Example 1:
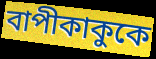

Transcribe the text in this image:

বাপীকাকুকে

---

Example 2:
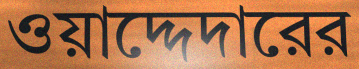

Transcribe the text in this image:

ওয়াদ্দেদারের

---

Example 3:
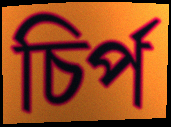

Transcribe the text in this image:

চির্প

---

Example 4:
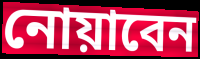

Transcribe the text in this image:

নোয়াবেন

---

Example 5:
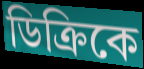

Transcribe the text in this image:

ডিক্রিকে